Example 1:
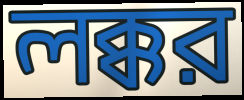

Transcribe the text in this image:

লক্কর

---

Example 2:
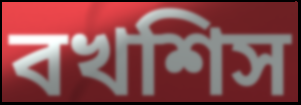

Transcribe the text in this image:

বখশিস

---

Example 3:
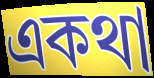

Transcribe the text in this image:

একথা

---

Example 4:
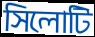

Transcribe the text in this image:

সিলোটি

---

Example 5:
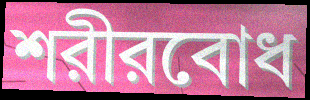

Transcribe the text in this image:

শরীরবোধ